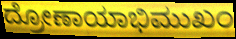
ದ್ರೋಣಾಯಾಭಿಮುಖಂ